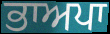
ਭਾਅਪਾ